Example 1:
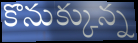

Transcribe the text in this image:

కొనుక్కున్న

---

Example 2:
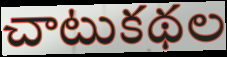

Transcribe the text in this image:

చాటుకథల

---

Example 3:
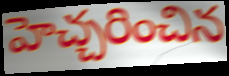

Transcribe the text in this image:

హెచ్చరించిన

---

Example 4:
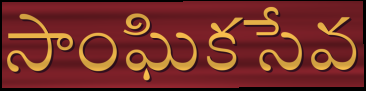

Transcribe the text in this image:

సాంఘికసేవ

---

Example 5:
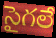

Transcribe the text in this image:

సైగలే